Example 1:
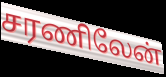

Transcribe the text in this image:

சரணிலேன்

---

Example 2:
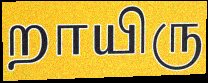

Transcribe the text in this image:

றாயிரு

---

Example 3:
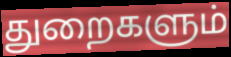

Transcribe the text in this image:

துறைகளும்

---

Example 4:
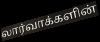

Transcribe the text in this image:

லார்வாக்களின்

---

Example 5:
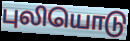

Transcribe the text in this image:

புலியொடு